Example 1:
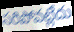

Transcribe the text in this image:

సరిపోవట్లేదు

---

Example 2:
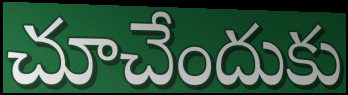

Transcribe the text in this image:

చూచేందుకు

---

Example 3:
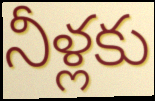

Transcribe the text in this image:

నీళ్లకు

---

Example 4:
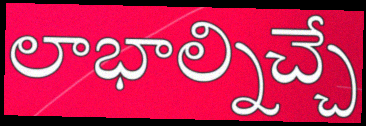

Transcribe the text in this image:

లాభాల్నిచ్చే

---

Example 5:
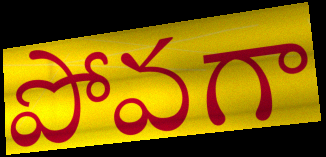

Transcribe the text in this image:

పోవగా